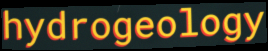
hydrogeology